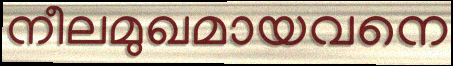
നീലമുഖമായവനെ